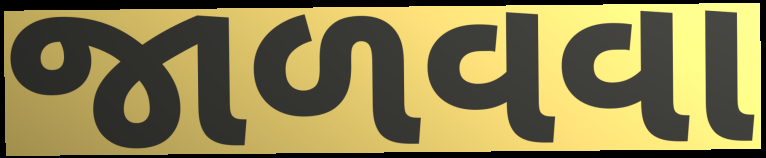
જાળવવા